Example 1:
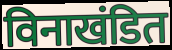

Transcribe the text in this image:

विनाखंडित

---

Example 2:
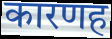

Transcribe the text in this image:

कारणह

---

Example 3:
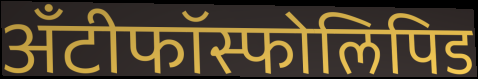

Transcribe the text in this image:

अँटीफॉस्फोलिपिड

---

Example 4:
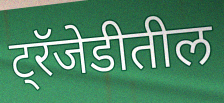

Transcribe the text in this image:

ट्रॅजेडीतील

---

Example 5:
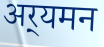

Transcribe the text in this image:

अर्यमन